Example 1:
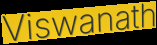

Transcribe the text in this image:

Viswanath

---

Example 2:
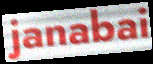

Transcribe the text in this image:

janabai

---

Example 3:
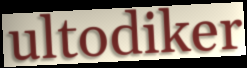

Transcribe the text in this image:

ultodiker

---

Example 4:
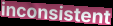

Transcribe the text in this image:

inconsistent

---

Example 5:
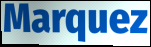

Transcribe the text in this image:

Marquez